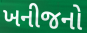
ખનીજનો